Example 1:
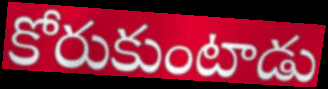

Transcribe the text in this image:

కోరుకుంటాడు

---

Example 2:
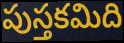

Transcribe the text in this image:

పుస్తకమిది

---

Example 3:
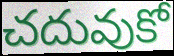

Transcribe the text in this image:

చదువుకో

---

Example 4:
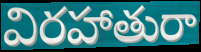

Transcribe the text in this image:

విరహాతురా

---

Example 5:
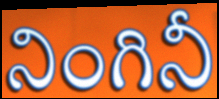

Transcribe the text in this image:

నింగినీ